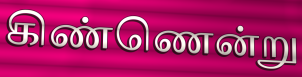
கிண்ணென்று